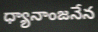
ధ్యానాంజనేన